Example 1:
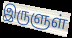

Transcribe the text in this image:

இருளுள்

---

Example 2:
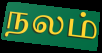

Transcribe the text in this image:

நலம்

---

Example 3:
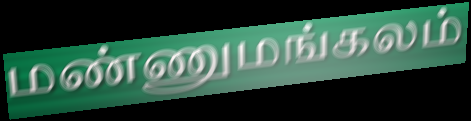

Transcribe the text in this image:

மண்ணுமங்கலம்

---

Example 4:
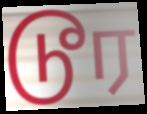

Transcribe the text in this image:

டூர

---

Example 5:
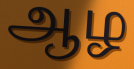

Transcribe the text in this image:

ஆழ